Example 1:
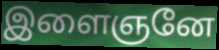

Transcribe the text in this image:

இளைஞனே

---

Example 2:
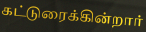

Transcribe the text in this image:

கட்டுரைக்கின்றார்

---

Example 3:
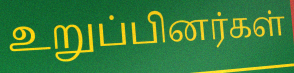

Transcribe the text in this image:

உறுப்பினர்கள்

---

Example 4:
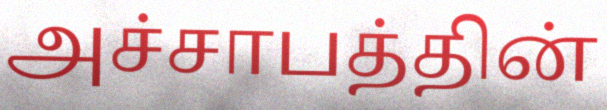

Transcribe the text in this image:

அச்சாபத்தின்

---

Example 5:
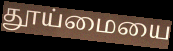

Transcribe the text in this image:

தூய்மையை